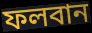
ফলবান